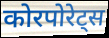
कोरपोरेट्स